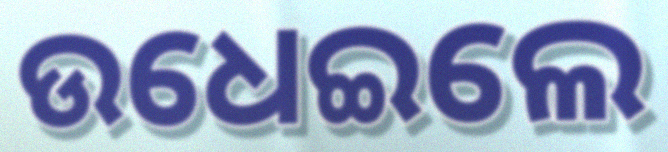
ଉଧେଇଲେ